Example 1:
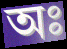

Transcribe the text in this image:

অঃ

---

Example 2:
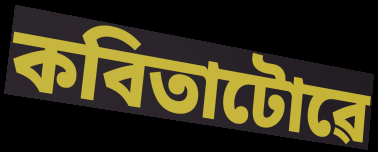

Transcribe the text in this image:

কবিতাটোৱে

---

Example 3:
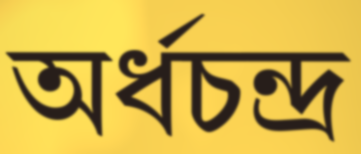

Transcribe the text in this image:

অৰ্ধচন্দ্ৰ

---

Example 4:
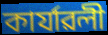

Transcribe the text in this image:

কাৰ্যাৱলী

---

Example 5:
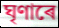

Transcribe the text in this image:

ঘৃণাৰে